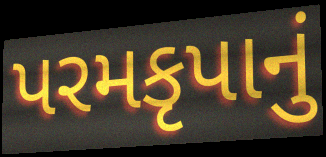
પરમકૃપાનું